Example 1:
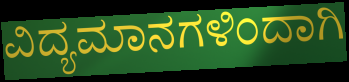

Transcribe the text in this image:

ವಿದ್ಯಮಾನಗಳಿಂದಾಗಿ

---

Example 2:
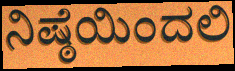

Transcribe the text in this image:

ನಿಷ್ಠೆಯಿಂದಲಿ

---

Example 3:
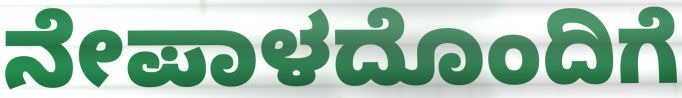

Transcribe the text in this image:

ನೇಪಾಳದೊಂದಿಗೆ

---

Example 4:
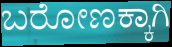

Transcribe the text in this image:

ಬರೋಣಕ್ಕಾಗಿ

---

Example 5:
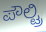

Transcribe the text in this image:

ಪೌಲ್ಟ್ರಿ